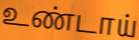
உண்டாய்